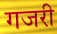
गजरी